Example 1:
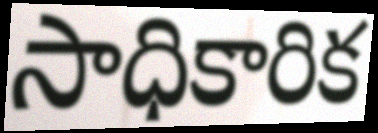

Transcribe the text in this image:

సాధికారిక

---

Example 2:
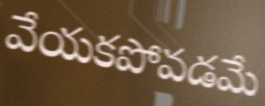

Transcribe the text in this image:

వేయకపోవడమే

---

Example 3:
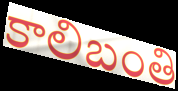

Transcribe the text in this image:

కాలిబంతి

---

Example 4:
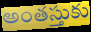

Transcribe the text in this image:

అంతస్తుకు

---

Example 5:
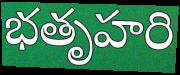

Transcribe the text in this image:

భతృహరి